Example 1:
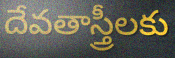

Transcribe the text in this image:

దేవతాస్త్రీలకు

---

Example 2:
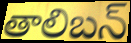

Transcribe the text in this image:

తాలిబన్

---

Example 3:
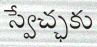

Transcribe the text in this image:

స్వేచ్ఛకు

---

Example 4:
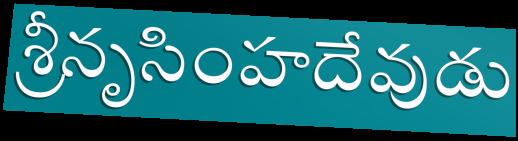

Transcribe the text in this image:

శ్రీనృసింహదేవుడు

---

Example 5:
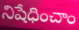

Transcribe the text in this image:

నిషేధించాం